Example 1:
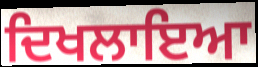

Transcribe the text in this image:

ਦਿਖਲਾਇਆ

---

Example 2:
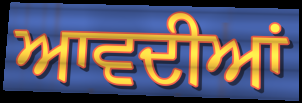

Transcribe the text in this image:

ਆਵਦੀਆਂ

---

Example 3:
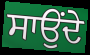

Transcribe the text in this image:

ਸਾਉਂਦੇ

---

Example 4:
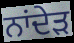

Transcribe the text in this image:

ਨਾਂਦੇੜ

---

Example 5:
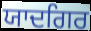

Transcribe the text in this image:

ਯਾਦਗਿਰ